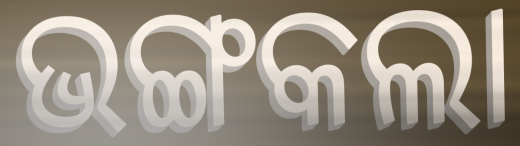
ଭଙ୍ଗକଲା